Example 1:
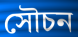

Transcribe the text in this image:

সৌচন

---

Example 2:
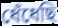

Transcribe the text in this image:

ধেঁধেছি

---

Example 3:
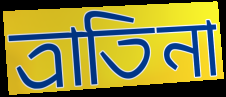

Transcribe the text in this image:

ত্রাতিনা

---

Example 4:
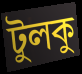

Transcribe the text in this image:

টুলকু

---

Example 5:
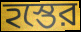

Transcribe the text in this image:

হস্তের